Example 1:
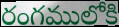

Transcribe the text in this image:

రంగములోకి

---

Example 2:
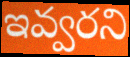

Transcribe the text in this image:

ఇవ్వరని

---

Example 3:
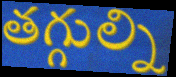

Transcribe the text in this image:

తగ్గుల్ని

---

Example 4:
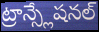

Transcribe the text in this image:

ట్రాన్స్లేషనల్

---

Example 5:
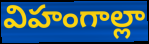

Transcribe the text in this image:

విహంగాల్లా